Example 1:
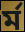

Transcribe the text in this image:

র্ম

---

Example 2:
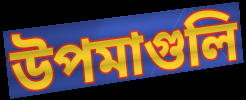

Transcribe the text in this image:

উপমাগুলি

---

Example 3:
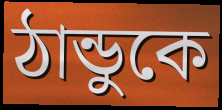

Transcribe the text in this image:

ঠান্ডুকে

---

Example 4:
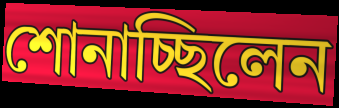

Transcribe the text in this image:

শোনাচ্ছিলেন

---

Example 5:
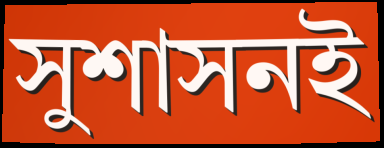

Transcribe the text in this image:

সুশাসনই